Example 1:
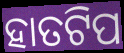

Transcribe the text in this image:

ହାତଟିପ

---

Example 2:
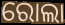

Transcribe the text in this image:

ରୋଲା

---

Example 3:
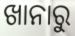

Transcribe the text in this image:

ଖାନାରୁ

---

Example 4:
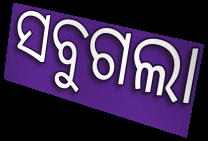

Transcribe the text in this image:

ସବୁଗଲା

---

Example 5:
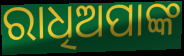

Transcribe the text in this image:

ରାଧିଅପାଙ୍କ